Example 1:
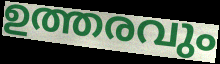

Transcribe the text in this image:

ഉത്തരവും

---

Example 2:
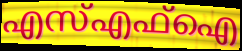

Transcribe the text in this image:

എസ്എഫ്ഐ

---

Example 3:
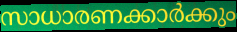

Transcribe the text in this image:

സാധാരണക്കാർക്കും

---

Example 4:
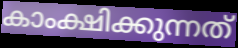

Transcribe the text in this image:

കാംക്ഷിക്കുന്നത്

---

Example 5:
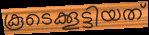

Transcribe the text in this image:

കൂടെക്കൂട്ടിയത്